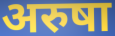
अरुषा